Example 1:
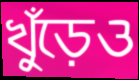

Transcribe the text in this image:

খুঁড়েও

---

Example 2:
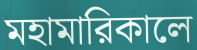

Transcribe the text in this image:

মহামারিকালে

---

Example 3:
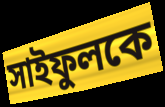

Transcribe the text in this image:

সাইফুলকে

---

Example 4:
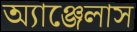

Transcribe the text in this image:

অ্যাঞ্জেলাস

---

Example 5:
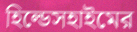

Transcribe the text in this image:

হিল্ডেসহাইমের